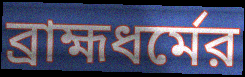
ব্রাহ্মধর্মের